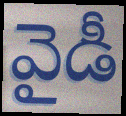
వైడీ